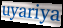
uyariya